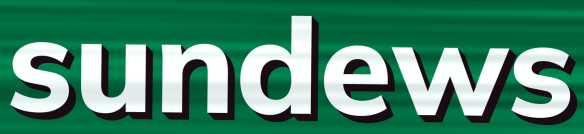
sundews